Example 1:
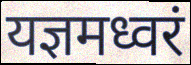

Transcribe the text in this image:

यज्ञमध्वरं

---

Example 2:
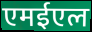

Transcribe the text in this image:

एमईएल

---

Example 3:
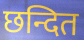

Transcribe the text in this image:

छन्दित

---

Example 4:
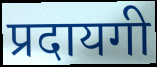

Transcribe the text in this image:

प्रदायगी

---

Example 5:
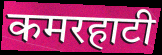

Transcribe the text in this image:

कमरहाटी